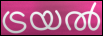
ട്രയൽ